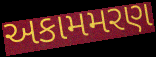
અકામમરણ